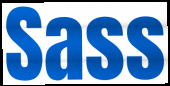
Sass